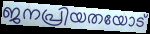
ജനപ്രിയതയോട്